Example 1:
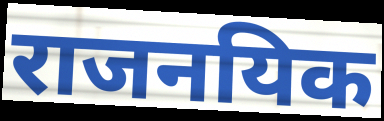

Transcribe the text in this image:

राजनयिक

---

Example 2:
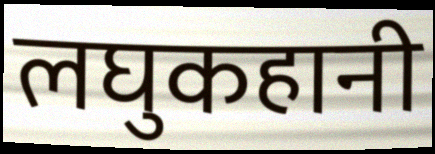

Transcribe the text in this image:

लघुकहानी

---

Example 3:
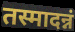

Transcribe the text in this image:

तस्मादन्नं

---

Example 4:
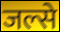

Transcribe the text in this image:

जल्से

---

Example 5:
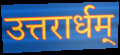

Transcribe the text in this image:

उत्तरार्धम्